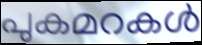
പുകമറകൾ